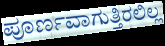
ಪೂರ್ಣವಾಗುತ್ತಿರಲಿಲ್ಲ